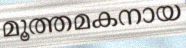
മൂത്തമകനായ